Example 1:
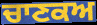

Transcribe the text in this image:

ਚਾਣਕਅ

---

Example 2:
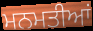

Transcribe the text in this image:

ਮਨਮਤੀਆਂ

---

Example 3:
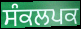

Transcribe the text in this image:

ਸੰਕਲਪਕ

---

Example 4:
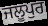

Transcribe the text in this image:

ਜਲੂਪੁਰ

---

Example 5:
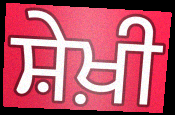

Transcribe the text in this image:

ਸ਼ੇਖ਼ੀ